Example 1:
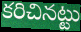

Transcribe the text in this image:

కరిచినట్టు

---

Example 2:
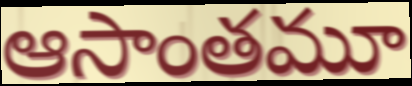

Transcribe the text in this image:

ఆసాంతమూ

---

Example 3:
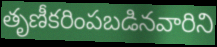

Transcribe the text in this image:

తృణీకరింపబడినవారిని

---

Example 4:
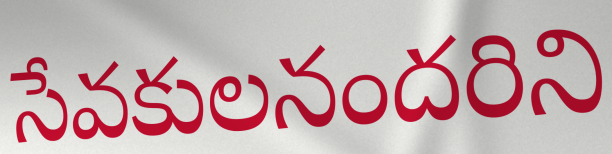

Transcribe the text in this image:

సేవకులనందరిని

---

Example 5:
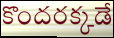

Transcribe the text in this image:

కొందరక్కడే